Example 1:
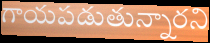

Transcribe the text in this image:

గాయపడుతున్నారని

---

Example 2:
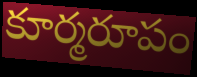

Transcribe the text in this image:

కూర్మరూపం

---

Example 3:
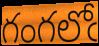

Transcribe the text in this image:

గంగలోఁ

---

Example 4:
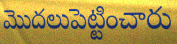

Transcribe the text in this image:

మొదలుపెట్టించారు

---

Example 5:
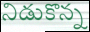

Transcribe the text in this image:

నిడుకొన్న